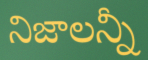
నిజాలన్నీ